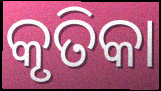
କୃତିକା